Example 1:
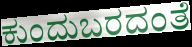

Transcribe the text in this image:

ಕುಂದುಬರದಂತೆ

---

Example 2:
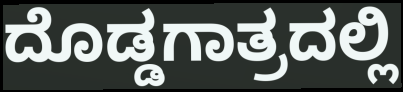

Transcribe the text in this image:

ದೊಡ್ಡಗಾತ್ರದಲ್ಲಿ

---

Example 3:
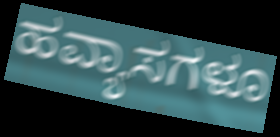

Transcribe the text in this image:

ಹವ್ಯಾಸಗಳೂ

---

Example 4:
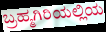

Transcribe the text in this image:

ಬ್ರಹ್ಮಗಿರಿಯಲ್ಲಿಯ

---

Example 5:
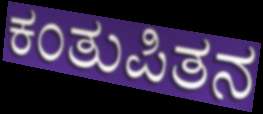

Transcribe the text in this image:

ಕಂತುಪಿತನ